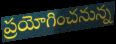
ప్రయోగించనున్న